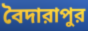
বৈদারাপুর